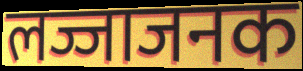
लज्जाजनक